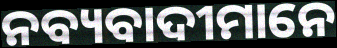
ନବ୍ୟବାଦୀମାନେ